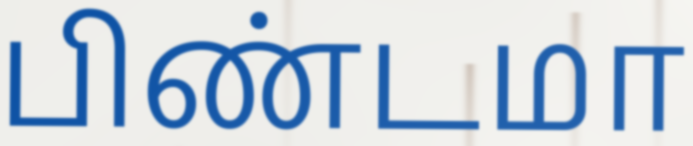
பிண்டமா